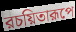
রচয়িতারূপে